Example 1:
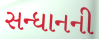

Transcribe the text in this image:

સન્ધાનની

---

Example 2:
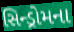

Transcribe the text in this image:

સિન્ડ્રોમના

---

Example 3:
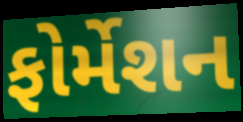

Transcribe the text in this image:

ફોર્મેશન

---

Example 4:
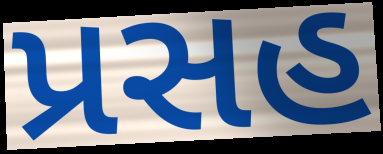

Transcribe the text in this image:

પ્રસહ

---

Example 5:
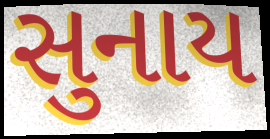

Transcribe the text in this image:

સુનાય